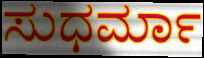
ಸುಧರ್ಮಾ